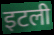
इटली